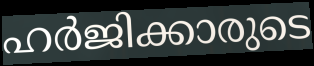
ഹർജിക്കാരുടെ